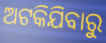
ଅଟକିଯିବାରୁ